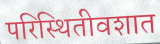
परिस्थितीवशात